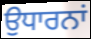
ਉਧਾਰਨਾਂ